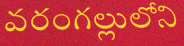
వరంగల్లులోని